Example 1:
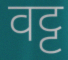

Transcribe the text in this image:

वट्ट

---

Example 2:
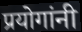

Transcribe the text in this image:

प्रयोगांनी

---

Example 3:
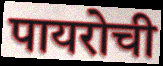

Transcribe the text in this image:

पायरोची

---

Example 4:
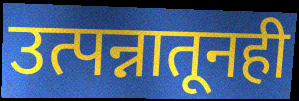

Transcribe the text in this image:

उत्पन्नातूनही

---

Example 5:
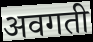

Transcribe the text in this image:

अवगती